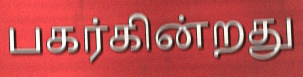
பகர்கின்றது